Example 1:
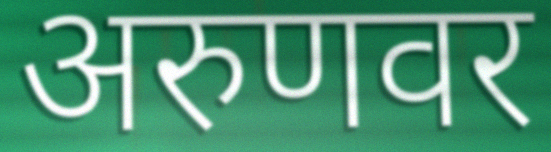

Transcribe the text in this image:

अरुणवर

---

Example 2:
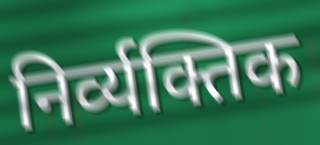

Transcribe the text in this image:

निर्व्यक्तिक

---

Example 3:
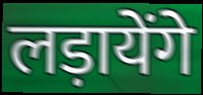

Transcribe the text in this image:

लड़ायेंगे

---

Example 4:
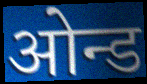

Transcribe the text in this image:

ओन्ड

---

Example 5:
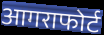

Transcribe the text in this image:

आगराफोर्ट